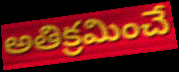
అతిక్రమించే